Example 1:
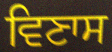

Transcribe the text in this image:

ਵਿਣਾਸ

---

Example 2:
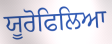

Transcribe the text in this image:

ਯੂਰੋਫਿਲਿਆ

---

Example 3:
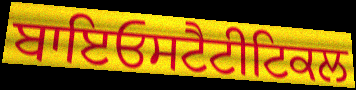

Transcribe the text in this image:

ਬਾਇਓਸਟੈਟੀਟਿਕਲ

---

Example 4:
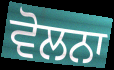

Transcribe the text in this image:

ਵੋਲਨਾ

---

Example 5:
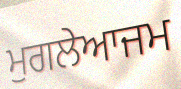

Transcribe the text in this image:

ਮੁਗਲੇਆਜਮ